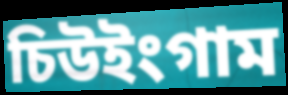
চিউইংগাম